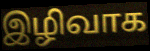
இழிவாக